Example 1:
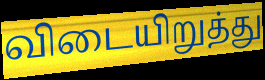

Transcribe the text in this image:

விடையிறுத்து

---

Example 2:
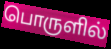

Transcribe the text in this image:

பொருளில்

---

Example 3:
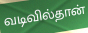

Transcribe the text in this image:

வடிவில்தான்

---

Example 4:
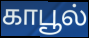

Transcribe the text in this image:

காபூல்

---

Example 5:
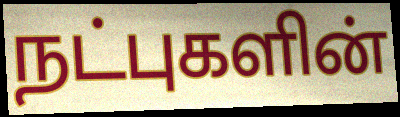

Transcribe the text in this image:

நட்புகளின்